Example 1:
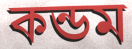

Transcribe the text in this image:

কন্ডম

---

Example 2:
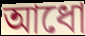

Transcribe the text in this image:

আধো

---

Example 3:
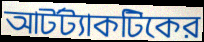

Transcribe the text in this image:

আর্টট্যাকটিকের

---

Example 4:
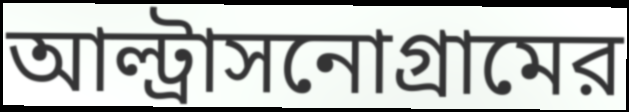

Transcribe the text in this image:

আল্ট্রাসনোগ্রামের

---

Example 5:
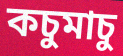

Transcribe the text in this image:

কচুমাচু